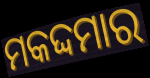
ମକଦ୍ଦମାର